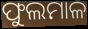
ଫୁଲମାଳ